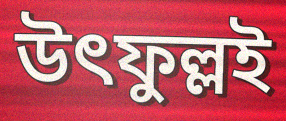
উৎফুল্লই